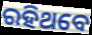
ରହିଥବେ